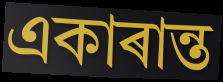
একাৰান্ত